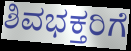
ಶಿವಭಕ್ತರಿಗೆ